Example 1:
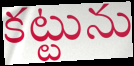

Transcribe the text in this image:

కట్టును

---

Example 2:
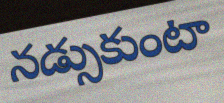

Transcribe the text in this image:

నడ్సుకుంటా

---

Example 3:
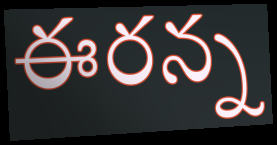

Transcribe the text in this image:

ఈరన్న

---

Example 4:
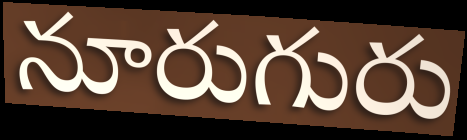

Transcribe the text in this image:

నూరుగురు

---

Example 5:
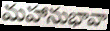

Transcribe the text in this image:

మహానుభావా